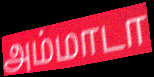
அம்மாடா